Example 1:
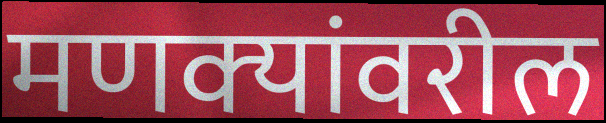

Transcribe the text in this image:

मणक्यांवरील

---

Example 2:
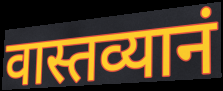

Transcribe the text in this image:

वास्तव्यानं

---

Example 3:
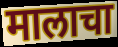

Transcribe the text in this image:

मालाचा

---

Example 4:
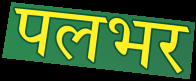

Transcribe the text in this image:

पलभर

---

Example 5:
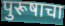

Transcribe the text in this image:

पुरूषाचा